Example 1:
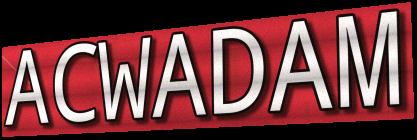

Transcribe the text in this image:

ACWADAM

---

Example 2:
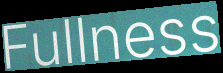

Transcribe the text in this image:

Fullness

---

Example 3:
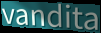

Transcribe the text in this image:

vandita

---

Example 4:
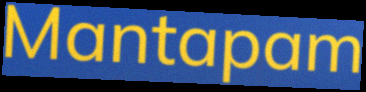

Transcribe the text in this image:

Mantapam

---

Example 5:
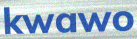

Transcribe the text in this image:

kwawo